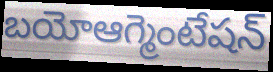
బయోఆగ్మెంటేషన్